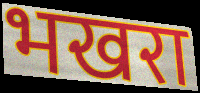
भखरा